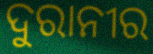
ଦୁରାନୀର